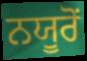
ਨਯੂਰੋਂ